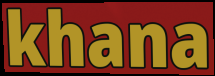
khana